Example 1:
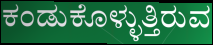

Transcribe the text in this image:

ಕಂಡುಕೊಳ್ಳುತ್ತಿರುವ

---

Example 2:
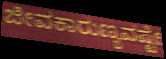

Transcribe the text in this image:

ಜೀವಕಾರುಣ್ಯವಷ್ಟೇ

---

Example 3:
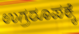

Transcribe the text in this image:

ಉಗ್ರರೂಪಕ್ಕೆ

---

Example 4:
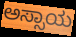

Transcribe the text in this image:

ಅಸ್ಸಾಯ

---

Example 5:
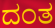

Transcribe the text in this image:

ದಂತ